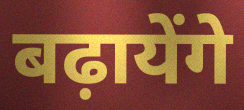
बढ़ायेंगे